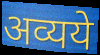
अव्यये